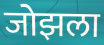
जोझला